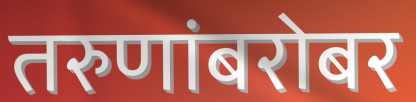
तरुणांबरोबर